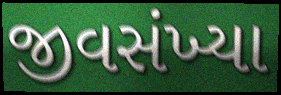
જીવસંખ્યા